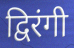
द्विरंगी